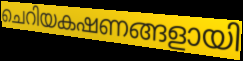
ചെറിയകഷണങ്ങളായി